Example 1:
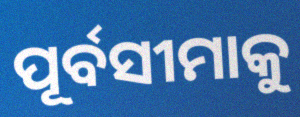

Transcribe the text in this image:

ପୂର୍ବସୀମାକୁ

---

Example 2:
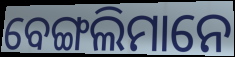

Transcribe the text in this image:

ବେଙ୍ଗଲିମାନେ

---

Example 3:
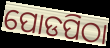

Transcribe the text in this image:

ପୋଡପିଠା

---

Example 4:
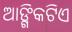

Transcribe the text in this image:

ଆଙ୍ଗିକଟିଏ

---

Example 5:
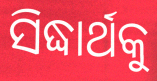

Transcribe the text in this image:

ସିଦ୍ଧାର୍ଥକୁ